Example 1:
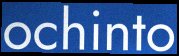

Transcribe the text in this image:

ochinto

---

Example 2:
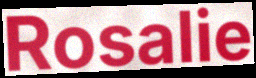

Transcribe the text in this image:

Rosalie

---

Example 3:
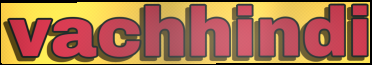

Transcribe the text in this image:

vachhindi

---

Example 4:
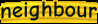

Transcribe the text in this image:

neighbour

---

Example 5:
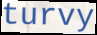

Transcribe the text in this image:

turvy